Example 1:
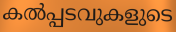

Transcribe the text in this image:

കൽപ്പടവുകളുടെ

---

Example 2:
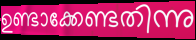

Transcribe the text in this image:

ഉണ്ടാക്കേണ്ടതിന്നു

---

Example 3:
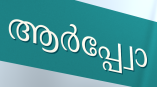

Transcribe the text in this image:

ആർപ്പ്വോ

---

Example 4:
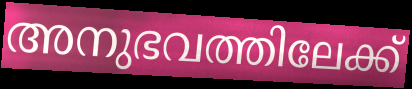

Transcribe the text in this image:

അനുഭവത്തിലേക്ക്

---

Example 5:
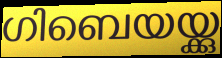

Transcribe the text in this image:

ഗിബെയയ്ക്കു